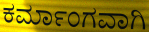
ಕರ್ಮಾಂಗವಾಗಿ